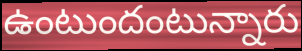
ఉంటుందంటున్నారు